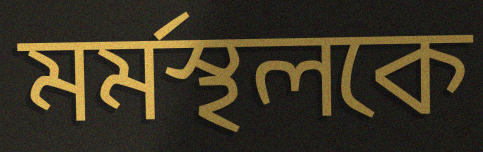
মর্মস্থলকে